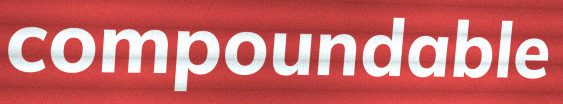
compoundable